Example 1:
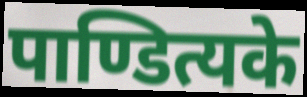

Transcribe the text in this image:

पाण्डित्यके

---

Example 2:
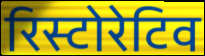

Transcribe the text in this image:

रिस्टोरेटिव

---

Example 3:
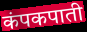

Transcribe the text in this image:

कंपकपाती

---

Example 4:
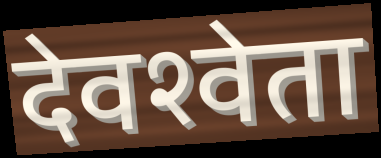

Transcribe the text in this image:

देवश्वेता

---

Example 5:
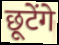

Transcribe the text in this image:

छूटेंगे